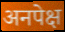
अनपेक्ष